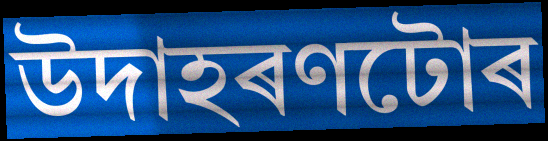
উদাহৰণটোৰ